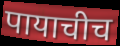
पायाचीच